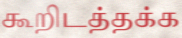
கூறிடத்தக்க